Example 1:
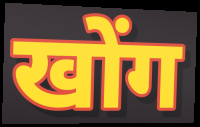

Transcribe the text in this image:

खोंग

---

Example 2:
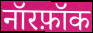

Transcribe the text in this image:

नॉरफ़ॉक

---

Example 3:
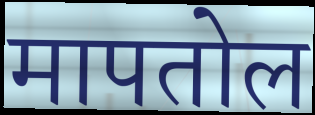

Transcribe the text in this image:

मापतोल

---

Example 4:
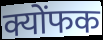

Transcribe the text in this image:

क्योंफक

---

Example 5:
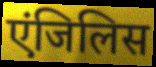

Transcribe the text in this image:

एंजिलिस